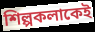
শিল্পকলাকেই